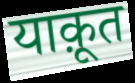
याक़ूत